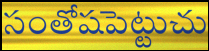
సంతోషపెట్టుచు